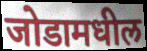
जोडामधील